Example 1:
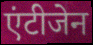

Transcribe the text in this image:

एंटीजेन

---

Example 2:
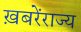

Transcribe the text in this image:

ख़बरेंराज्य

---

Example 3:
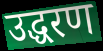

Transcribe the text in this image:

उद्धरण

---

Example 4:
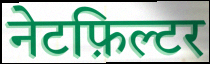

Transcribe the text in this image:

नेटफ़िल्टर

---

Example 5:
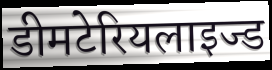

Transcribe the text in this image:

डीमटेरियलाइज्ड